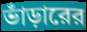
ভাঁড়ারের